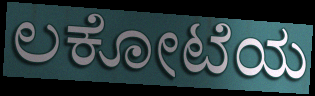
ಲಕೋಟೆಯ